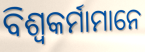
ବିଶ୍ଵକର୍ମାମାନେ